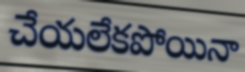
చేయలేకపోయినా